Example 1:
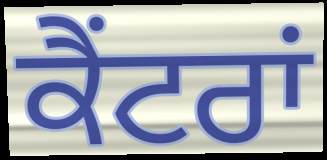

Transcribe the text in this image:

ਕੈਂਟਰਾਂ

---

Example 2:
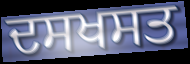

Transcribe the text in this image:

ਦਸਖਸਤ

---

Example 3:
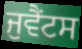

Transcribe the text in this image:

ਜੁਵੈਂਟਸ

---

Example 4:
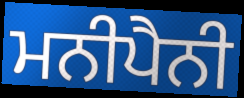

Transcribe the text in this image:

ਮਨੀਪੈਨੀ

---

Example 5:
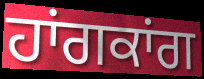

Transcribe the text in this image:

ਹਾਂਗਕਾਂਗ